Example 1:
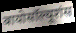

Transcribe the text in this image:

बायोसॉल्यूशंस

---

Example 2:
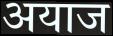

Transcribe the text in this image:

अयाज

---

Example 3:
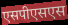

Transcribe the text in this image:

एसपीएसएस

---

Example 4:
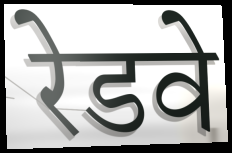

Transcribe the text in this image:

रेडवे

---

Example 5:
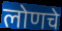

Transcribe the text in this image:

लोणचे